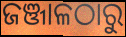
ଜଞ୍ଜାଳଠାରୁ